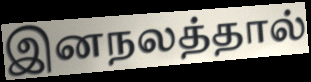
இனநலத்தால்